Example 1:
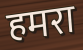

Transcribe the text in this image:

हमरा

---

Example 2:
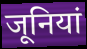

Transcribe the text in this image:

जूनियां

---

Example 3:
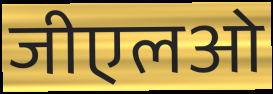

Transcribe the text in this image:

जीएलओ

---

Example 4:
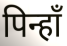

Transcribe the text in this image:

पिन्हाँ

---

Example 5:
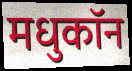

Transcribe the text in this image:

मधुकॉन